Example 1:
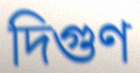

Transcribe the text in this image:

দিগুণ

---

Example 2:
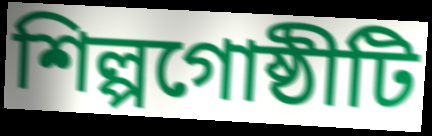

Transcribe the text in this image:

শিল্পগোষ্ঠীটি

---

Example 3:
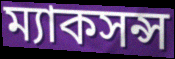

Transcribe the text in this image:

ম্যাকসন্স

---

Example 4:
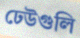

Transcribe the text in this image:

ঢেউগুলি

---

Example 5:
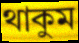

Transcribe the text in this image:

থাকুম